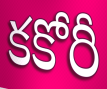
కకోరీ